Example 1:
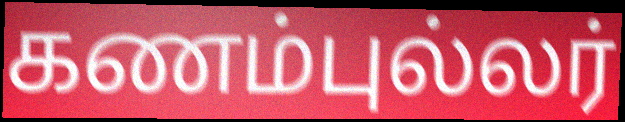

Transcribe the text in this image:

கணம்புல்லர்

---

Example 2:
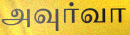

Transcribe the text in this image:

அவுர்வா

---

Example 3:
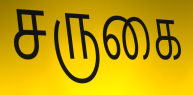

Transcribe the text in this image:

சருகை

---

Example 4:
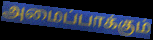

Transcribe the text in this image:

அமைப்பாக்கும்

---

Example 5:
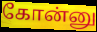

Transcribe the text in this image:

கோன்னு